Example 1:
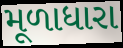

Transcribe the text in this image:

મૂળાધારા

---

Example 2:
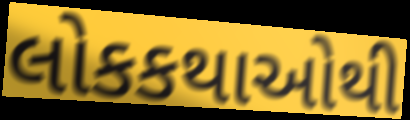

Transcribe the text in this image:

લોકકથાઓથી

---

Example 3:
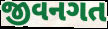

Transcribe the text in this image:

જીવનગત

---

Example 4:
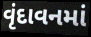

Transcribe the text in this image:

વૃંદાવનમાં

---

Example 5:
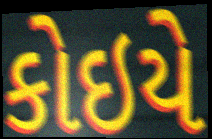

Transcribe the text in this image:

કોઇયે